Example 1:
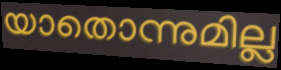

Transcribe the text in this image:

യാതൊന്നുമില്ല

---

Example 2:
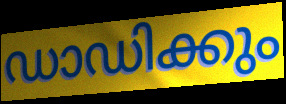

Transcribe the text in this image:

ഡാഡിക്കും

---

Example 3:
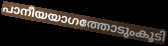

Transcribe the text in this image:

പാനീയയാഗത്തോടുംകൂടി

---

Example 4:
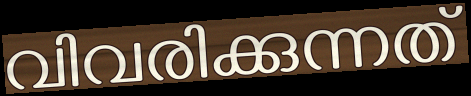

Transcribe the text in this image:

വിവരിക്കുന്നത്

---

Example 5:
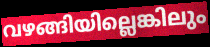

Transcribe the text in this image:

വഴങ്ങിയില്ലെങ്കിലും